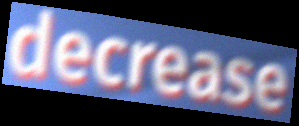
decrease